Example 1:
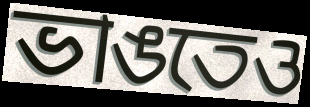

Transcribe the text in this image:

ভাঙতেও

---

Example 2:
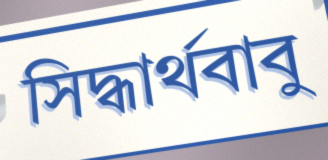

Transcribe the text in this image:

সিদ্ধার্থবাবু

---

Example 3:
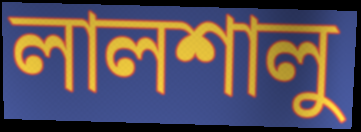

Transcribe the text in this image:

লালশালু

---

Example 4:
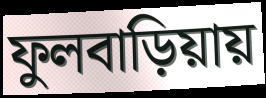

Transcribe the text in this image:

ফুলবাড়িয়ায়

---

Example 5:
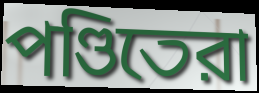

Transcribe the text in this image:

পণ্ডিতেরা